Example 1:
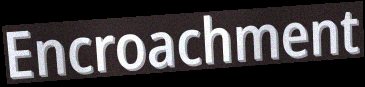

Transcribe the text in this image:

Encroachment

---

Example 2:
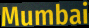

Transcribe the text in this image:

Mumbai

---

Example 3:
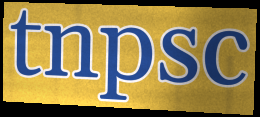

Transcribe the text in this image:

tnpsc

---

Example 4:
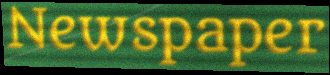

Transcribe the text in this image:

Newspaper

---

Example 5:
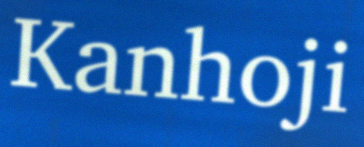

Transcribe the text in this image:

Kanhoji